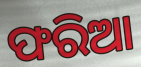
ଫରିଆ